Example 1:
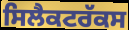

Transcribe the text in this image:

ਸਿਲੈਕਟਰੱਕਸ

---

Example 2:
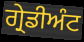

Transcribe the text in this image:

ਗ੍ਰੇਡੀਅੰਟ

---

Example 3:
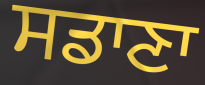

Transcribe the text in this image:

ਸਡਾਣਾ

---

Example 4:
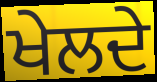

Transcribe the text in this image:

ਖੇਲਦੇ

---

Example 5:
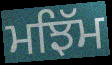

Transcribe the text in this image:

ਮਝਿੱਮ